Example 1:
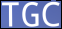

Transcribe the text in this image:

TGC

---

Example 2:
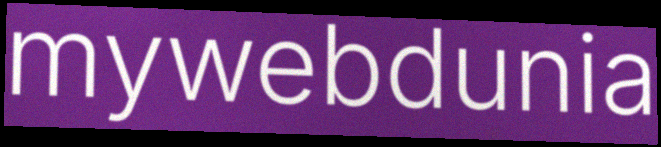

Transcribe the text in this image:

mywebdunia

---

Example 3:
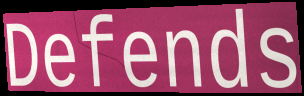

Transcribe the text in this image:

Defends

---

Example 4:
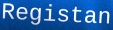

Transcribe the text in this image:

Registan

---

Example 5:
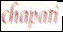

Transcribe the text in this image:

chapati